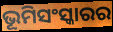
ଭୂମିସଂସ୍କାରର